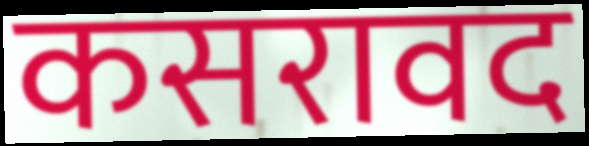
कसरावद